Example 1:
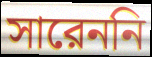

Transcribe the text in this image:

সারেননি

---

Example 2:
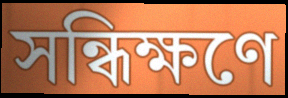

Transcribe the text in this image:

সন্ধিক্ষণে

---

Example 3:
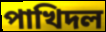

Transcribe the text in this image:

পাখিদল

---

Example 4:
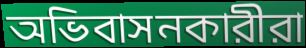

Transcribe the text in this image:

অভিবাসনকারীরা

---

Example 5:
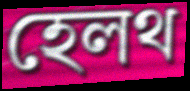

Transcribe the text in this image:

হেলথ